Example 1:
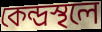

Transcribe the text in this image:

কেন্দ্রস্থলে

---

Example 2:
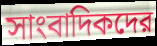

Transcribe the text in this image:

সাংবাদিকদের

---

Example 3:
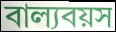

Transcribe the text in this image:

বাল্যবয়স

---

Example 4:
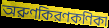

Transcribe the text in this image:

অরুণকিরণকণিকা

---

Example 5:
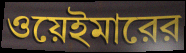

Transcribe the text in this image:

ওয়েইমারের